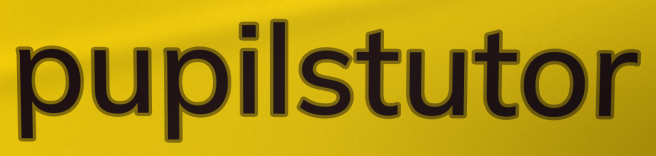
pupilstutor